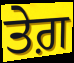
ਤੇਗ਼